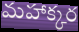
మహాక్కర